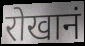
रोखानं